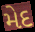
મેદ